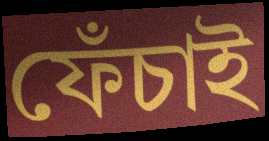
ফেঁচাই